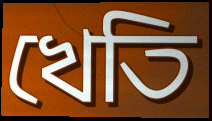
খেতি